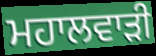
ਮਹਾਲਵਾੜੀ